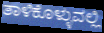
ತಾಳಿಕೊಳ್ಳುವಲ್ಲಿ